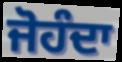
ਜੋਹੰਦਾ